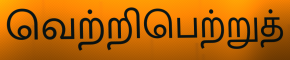
வெற்றிபெற்றுத்